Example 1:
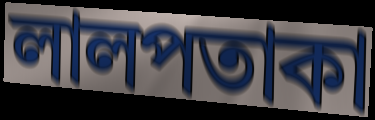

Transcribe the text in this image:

লালপতাকা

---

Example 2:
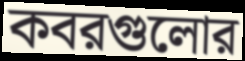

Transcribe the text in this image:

কবরগুলোর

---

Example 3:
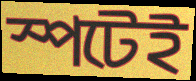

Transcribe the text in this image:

স্পটেই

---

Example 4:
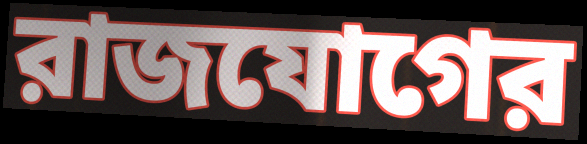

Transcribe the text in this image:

রাজযোগের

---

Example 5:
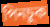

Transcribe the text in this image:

পিনচুক